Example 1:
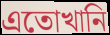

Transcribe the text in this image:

এতোখানি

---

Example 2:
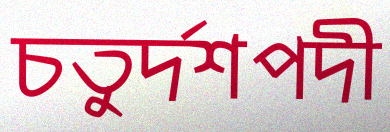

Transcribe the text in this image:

চতুর্দশপদী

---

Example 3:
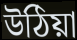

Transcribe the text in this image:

উঠিয়া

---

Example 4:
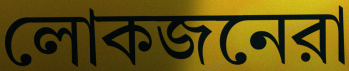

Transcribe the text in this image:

লোকজনেরা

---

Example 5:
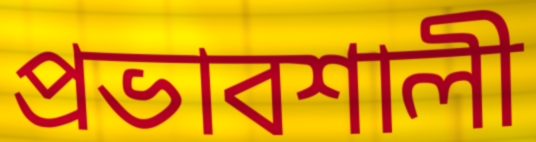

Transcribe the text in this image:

প্রভাবশালী